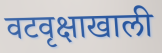
वटवृक्षाखाली